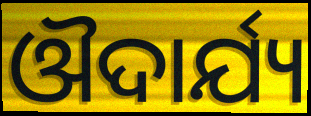
ଔଦାର୍ଯ୍ୟ